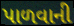
પાળવાની